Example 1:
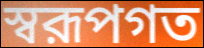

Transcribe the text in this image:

স্বরূপগত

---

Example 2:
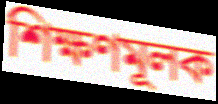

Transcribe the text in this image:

শিক্ষণমূলক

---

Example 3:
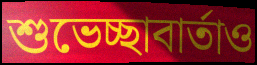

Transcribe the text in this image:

শুভেচ্ছাবার্তাও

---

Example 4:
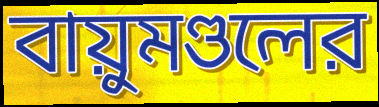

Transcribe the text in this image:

বায়ুমণ্ডলের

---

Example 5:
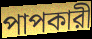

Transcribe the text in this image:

পাপকারী